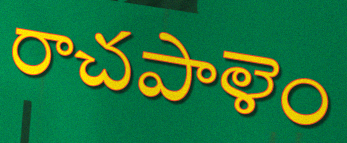
రాచపాళెం